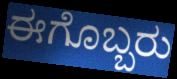
ಈಗೊಬ್ಬರು